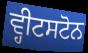
ਵ੍ਹੀਟਸਟੋਨ